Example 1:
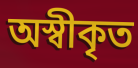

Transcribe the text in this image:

অস্বীকৃত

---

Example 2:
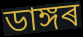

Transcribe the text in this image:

ডাঙ্গৰ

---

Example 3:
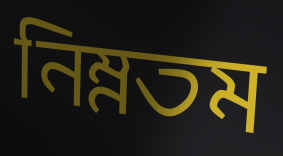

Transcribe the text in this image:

নিম্নতম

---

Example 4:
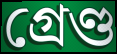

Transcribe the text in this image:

গ্ৰেণ্ড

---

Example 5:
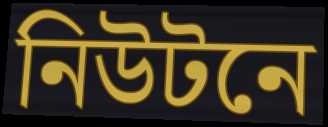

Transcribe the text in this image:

নিউটনে